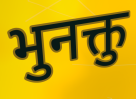
भुनक्तु